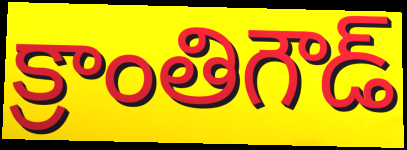
క్రాంతిగౌడ్